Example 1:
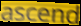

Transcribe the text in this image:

ascend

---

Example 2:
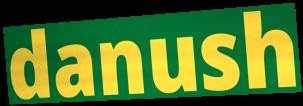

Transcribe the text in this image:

danush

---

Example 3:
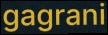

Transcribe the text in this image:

gagrani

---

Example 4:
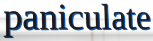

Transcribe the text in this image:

paniculate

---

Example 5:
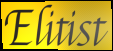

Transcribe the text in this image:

Elitist